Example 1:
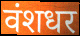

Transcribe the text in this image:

वंशधर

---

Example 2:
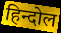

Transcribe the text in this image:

हिन्दोल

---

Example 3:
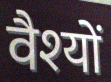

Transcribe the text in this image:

वैश्‍यों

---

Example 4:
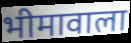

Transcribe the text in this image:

भीमावाला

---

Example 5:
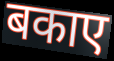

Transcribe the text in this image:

बकाए